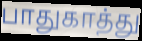
பாதுகாத்து